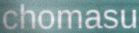
chomasu